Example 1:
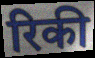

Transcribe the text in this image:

रिकी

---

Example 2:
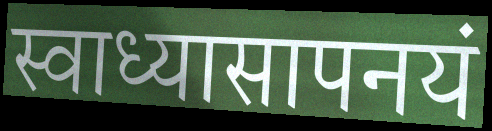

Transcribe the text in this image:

स्वाध्यासापनयं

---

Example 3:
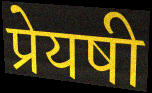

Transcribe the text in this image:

प्रेयषी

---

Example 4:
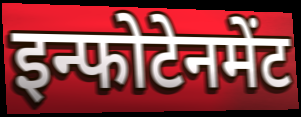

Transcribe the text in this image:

इन्फोटेनमेंट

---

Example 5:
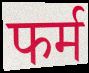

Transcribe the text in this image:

फर्म